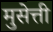
मुसेत्ती